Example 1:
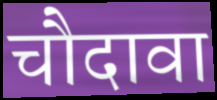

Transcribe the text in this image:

चौदावा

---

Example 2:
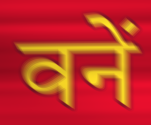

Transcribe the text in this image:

वनें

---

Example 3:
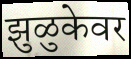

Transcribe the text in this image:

झुळुकेवर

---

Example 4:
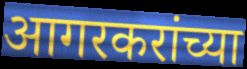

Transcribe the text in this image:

आगरकरांच्या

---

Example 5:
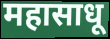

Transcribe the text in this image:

महासाधू